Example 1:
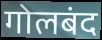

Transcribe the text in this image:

गोलबंद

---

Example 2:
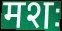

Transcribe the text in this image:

मशः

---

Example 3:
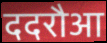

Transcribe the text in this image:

ददरौआ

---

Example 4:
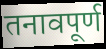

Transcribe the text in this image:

तनावपूर्ण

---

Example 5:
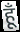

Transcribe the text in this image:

हूंँ